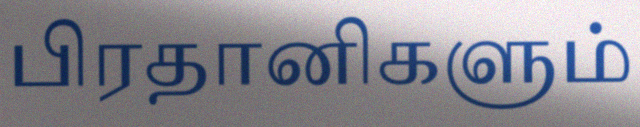
பிரதானிகளும்